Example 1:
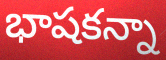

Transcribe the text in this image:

భాషకన్నా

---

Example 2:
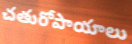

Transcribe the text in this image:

చతురోపాయాలు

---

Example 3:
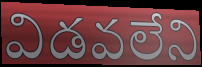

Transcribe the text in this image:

విడవలేని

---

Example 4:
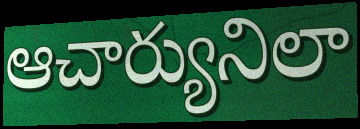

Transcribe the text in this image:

ఆచార్యునిలా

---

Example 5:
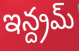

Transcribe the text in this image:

ఇన్ద్రమ్